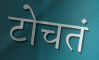
टोचतं